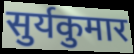
सुर्यकुमार